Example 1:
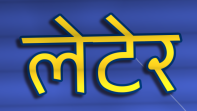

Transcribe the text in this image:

लेटेर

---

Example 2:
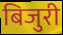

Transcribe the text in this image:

बिजुरी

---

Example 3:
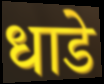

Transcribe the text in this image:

धाडे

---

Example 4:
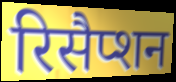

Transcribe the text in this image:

रिसैप्शन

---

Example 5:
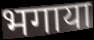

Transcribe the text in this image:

भगाया